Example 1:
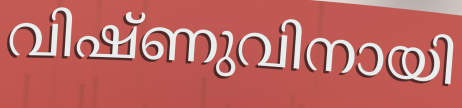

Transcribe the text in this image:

വിഷ്ണുവിനായി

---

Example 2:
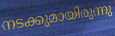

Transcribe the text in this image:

നടക്കുമായിരുന്നു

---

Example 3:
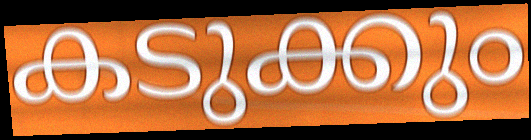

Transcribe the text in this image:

കടുക്കും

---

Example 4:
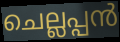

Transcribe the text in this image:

ചെല്ലപ്പൻ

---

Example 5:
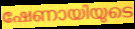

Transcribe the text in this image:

ഷേണായിയുടെ